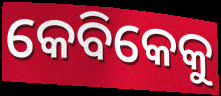
କେବିକେକୁ